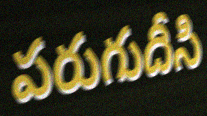
పరుగుదీసి